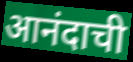
आनंदाची